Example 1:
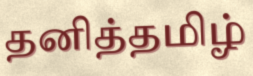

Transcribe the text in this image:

தனித்தமிழ்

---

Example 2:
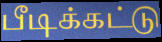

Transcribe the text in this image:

பீடிக்கட்டு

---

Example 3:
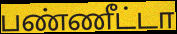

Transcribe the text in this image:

பண்ணீட்டா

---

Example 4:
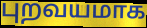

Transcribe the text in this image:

புறவயமாக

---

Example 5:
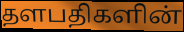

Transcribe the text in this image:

தளபதிகளின்